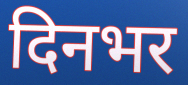
दिनभर